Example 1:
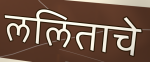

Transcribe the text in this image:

ललिताचे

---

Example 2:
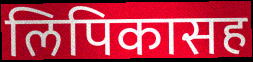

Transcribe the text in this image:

लिपिकासह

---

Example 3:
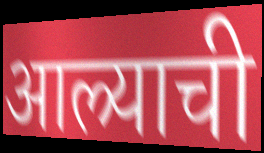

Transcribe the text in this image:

आल्याची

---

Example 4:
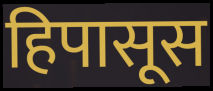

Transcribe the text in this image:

हिपासूस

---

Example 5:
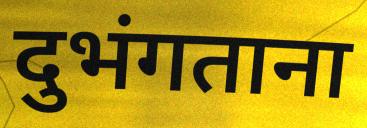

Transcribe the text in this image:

दुभंगताना